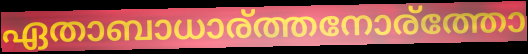
ഏതാബാധാര്ത്തനോര്ത്തോ